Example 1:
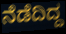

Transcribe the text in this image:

ನೆಡೆದಿದ್ದ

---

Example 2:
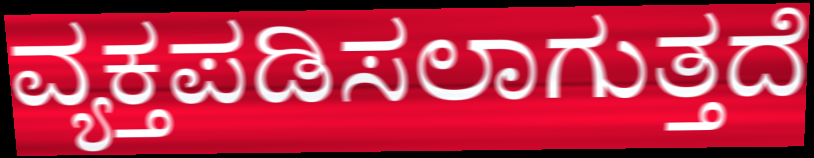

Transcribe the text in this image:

ವ್ಯಕ್ತಪಡಿಸಲಾಗುತ್ತದೆ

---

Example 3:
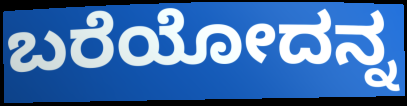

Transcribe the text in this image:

ಬರೆಯೋದನ್ನ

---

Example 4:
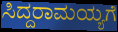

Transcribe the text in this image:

ಸಿದ್ದರಾಮಯ್ಯಗೆ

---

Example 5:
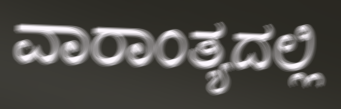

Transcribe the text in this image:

ವಾರಾಂತ್ಯದಲ್ಲಿ